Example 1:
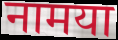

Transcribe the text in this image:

नामया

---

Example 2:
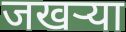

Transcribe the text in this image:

जखऱ्या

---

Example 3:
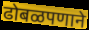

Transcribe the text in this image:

ढोबळपणाने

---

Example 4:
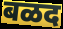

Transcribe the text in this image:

बळद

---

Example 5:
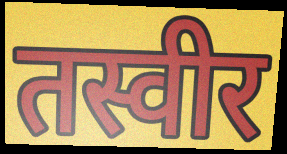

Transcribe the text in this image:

तस्वीर